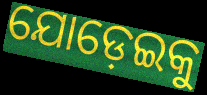
ଯୋଡ଼େଇକୁ